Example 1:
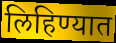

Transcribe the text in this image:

लिहिण्यात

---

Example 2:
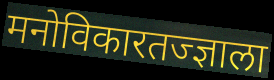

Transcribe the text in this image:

मनोविकारतज्ज्ञाला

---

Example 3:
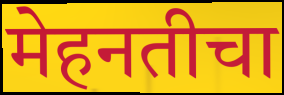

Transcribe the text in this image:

मेहनतीचा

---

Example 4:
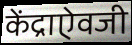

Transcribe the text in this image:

केंद्राऐवजी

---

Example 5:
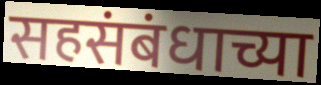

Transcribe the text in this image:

सहसंबंधाच्या